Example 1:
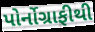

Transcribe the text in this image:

પોર્નોગ્રાફીથી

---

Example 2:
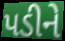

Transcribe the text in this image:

પડીને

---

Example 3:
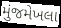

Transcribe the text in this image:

મુંજમેખલા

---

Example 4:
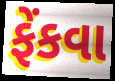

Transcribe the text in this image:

ફેંકવા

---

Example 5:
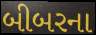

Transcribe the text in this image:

બીબરના